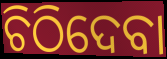
ଚିଠିଦେବା